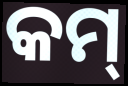
କମ୍